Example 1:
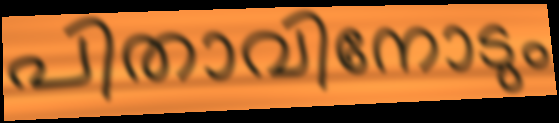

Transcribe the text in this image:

പിതാവിനോടും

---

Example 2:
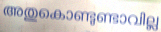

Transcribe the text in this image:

അതുകൊണ്ടുണ്ടാവില്ല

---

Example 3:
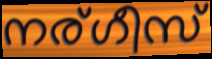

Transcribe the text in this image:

നര്ഗീസ്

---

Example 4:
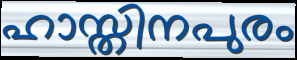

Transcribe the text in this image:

ഹാസ്തിനപുരം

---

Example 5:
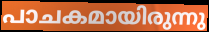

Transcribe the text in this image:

പാചകമായിരുന്നു